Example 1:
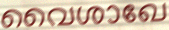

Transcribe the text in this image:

വൈശാഖേ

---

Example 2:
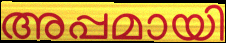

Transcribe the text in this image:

അപ്പമായി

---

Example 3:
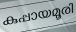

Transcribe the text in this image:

കുപ്പായമൂരി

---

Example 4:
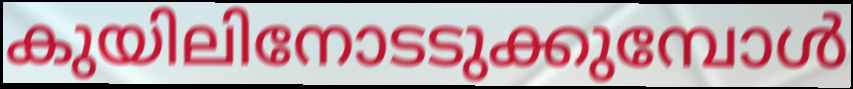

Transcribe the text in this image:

കുയിലിനോടടുക്കുമ്പോൾ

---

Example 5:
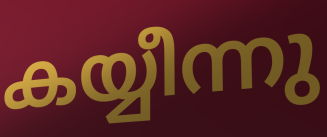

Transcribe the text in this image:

കയ്യീന്നു